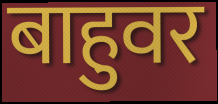
बाहुवर